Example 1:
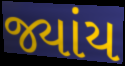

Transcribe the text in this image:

જ્યાંય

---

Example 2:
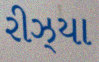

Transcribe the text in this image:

રીઝ્યા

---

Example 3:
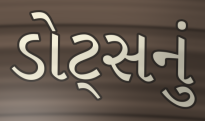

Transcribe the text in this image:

ડોટ્સનું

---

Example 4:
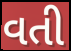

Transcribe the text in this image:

વતી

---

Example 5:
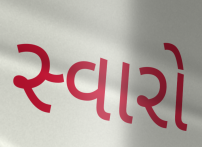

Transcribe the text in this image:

સ્વારો